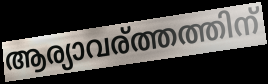
ആര്യാവര്ത്തത്തിന്